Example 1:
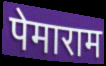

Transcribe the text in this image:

पेमाराम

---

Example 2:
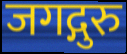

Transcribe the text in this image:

जगद्गुरु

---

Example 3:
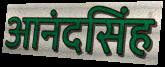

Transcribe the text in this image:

आनंदसिंह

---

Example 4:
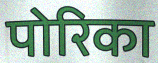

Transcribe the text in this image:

पोरिका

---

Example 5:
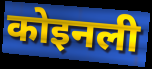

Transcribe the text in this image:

कोइनली